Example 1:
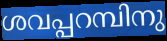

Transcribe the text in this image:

ശവപ്പറമ്പിനു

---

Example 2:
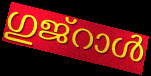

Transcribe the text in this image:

ഗുജ്റാൾ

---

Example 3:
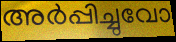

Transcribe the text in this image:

അർപ്പിച്ചുവോ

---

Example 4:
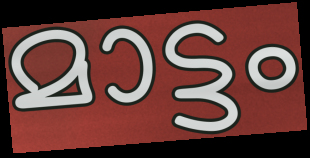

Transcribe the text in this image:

മാട്ടം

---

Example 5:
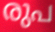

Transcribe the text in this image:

രുപ